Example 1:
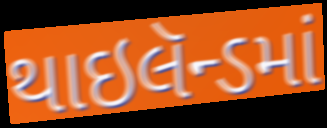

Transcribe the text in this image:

થાઇલૅન્ડમાં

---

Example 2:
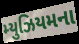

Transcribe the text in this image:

મ્યુઝિયમના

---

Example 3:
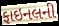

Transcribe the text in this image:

ફાઇનલની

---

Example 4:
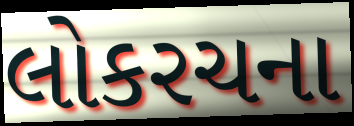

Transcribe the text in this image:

લોકરચના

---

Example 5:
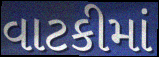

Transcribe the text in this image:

વાટકીમાં